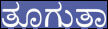
ತೂಗುತಾ